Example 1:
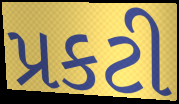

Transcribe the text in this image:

પ્રકટી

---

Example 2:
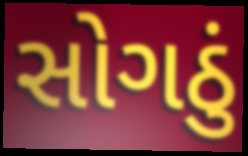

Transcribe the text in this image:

સોગઠું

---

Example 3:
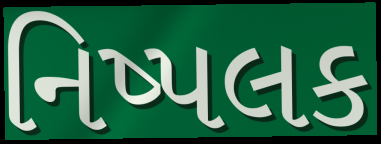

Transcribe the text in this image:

નિષ્પલક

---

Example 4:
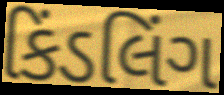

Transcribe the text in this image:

કિંડલિંગ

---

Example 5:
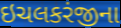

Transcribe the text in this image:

ઇચલકરંજીના